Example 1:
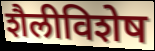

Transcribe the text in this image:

शैलीविशेष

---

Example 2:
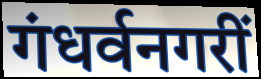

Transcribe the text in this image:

गंधर्वनगरीं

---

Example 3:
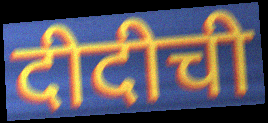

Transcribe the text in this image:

दीदीची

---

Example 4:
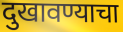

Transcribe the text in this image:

दुखावण्याचा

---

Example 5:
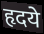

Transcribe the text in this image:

हृदये